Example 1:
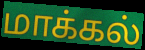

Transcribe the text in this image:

மாக்கல்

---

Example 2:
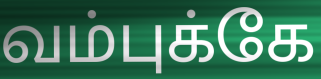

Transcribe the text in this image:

வம்புக்கே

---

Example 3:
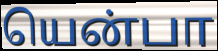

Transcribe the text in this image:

யென்பா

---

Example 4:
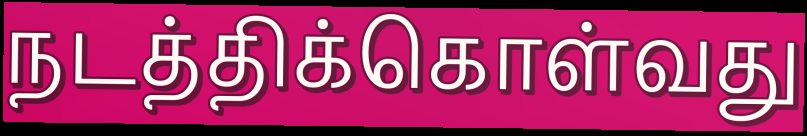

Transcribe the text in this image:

நடத்திக்கொள்வது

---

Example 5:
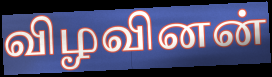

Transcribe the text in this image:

விழவினன்